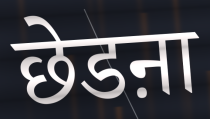
छेडऩा